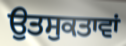
ਉਤਸੁਕਤਾਵਾਂ